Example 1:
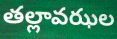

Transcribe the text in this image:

తల్లావఝల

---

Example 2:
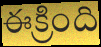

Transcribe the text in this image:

ఈక్రింది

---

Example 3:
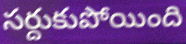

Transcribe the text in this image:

సర్దుకుపోయింది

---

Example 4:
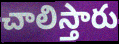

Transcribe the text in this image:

చాలిస్తారు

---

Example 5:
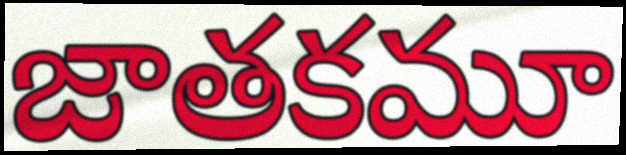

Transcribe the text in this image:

జాతకమూ